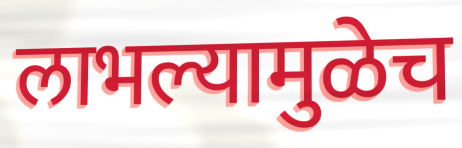
लाभल्यामुळेच